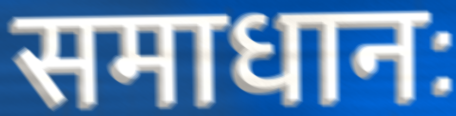
समाधानः